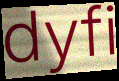
dyfi